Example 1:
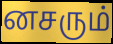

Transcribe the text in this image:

னசரும்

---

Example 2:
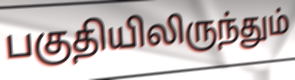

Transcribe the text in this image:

பகுதியிலிருந்தும்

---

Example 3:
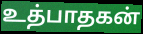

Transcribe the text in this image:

உத்பாதகன்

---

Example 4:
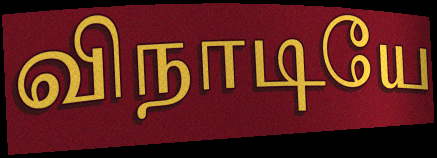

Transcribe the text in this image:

விநாடியே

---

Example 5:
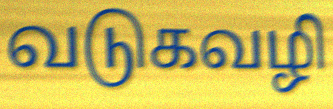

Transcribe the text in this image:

வடுகவழி